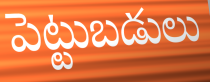
పెట్టుబడులు